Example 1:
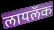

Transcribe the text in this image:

लायलॅक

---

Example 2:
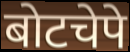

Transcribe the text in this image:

बोटचेपे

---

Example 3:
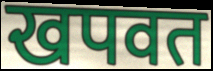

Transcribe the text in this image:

खपवत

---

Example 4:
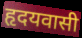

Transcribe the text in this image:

हृदयवासी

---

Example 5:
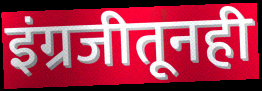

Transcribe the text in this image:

इंग्रजीतूनही